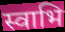
स्वाभि